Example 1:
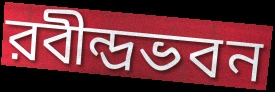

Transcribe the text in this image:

রবীন্দ্রভবন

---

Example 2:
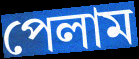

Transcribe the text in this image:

পেলাম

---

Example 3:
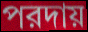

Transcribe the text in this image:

পরদায়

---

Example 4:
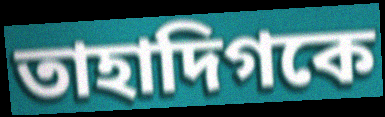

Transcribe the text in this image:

তাহাদিগকে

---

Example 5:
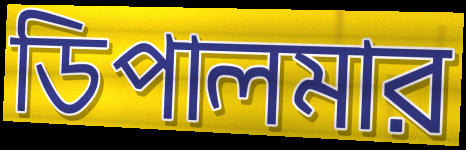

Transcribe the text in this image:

ডিপালমার